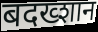
बदख्शान